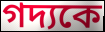
গদ্যকে